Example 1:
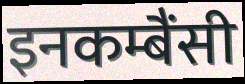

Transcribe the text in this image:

इनकम्बैंसी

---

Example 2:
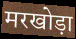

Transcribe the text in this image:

मरखोड़ा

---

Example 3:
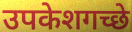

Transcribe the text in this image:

उपकेशगच्छे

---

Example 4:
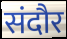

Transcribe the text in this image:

संदौर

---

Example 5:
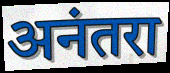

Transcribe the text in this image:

अनंतरा